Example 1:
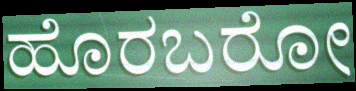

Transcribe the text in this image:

ಹೊರಬರೋ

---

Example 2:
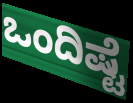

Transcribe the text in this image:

ಒಂದಿಷ್ಟೆ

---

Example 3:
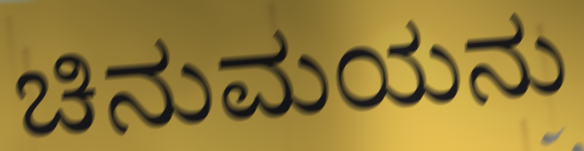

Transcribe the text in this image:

ಚಿನುಮಯನು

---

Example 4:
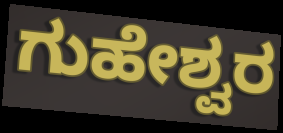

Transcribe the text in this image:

ಗುಹೇಶ್ವರ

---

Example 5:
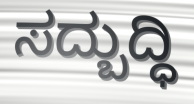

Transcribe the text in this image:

ಸದ್ಬುದ್ಧಿ